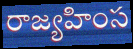
రాజ్యహింస